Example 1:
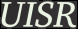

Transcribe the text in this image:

UISR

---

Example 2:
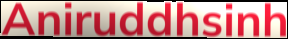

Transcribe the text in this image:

Aniruddhsinh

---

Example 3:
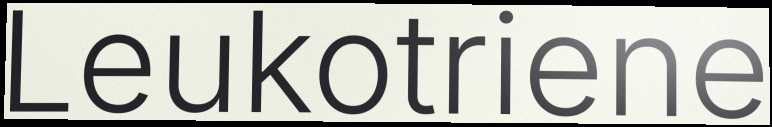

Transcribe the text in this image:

Leukotriene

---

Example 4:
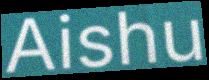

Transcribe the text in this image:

Aishu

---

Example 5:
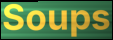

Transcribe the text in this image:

Soups